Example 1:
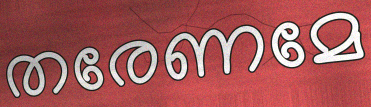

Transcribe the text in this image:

തരേണമേ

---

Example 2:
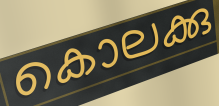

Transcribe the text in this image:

കൊലക്കു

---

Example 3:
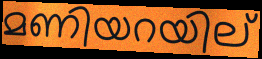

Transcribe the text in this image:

മണിയറയില്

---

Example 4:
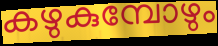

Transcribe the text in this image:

കഴുകുമ്പോഴും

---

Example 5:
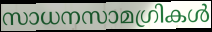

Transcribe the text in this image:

സാധനസാമഗ്രികൾ